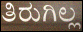
ತಿರುಗಿಲ್ಲ